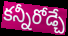
కన్నీరోడ్చే